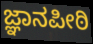
ಜ್ಞಾನಪೀಠಿ